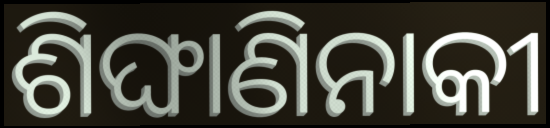
ଶିଙ୍ଘାଣିନାକୀ